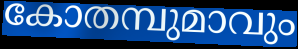
കോതമ്പുമാവും